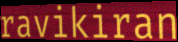
ravikiran